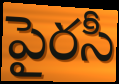
పైరసీ